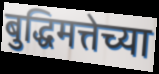
बुद्धिमत्तेच्या